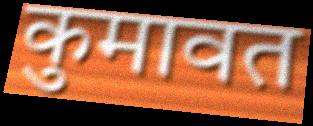
कुमावत